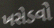
ખસેડવો